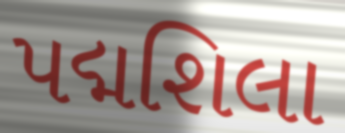
પદ્મશિલા